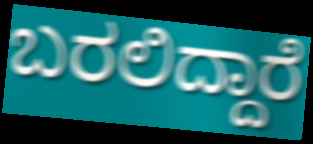
ಬರಲಿದ್ದಾರೆ